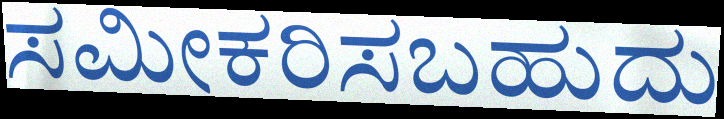
ಸಮೀಕರಿಸಬಹುದು